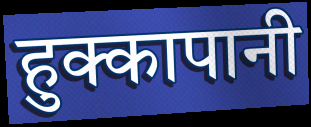
हुक्कापानी